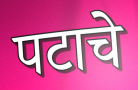
पटाचे